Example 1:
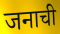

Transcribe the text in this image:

जनाची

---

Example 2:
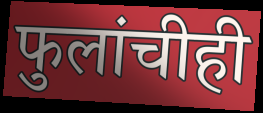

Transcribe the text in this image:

फुलांचीही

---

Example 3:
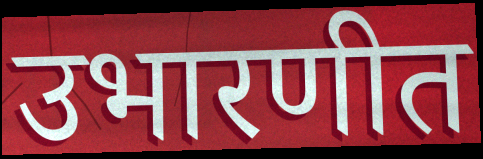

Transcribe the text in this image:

उभारणीत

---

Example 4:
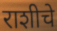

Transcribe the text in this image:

राशीचे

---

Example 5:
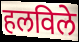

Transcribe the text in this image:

हलविले